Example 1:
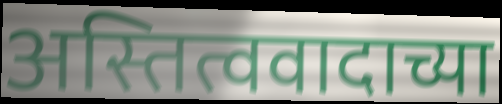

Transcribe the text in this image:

अस्तित्ववादाच्या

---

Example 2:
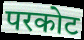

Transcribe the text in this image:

परकोट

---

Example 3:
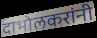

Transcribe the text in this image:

दाभोलकरांनी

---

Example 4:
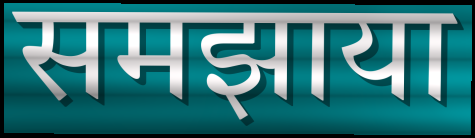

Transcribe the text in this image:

समझाया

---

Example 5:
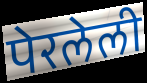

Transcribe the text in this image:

पेरलेली